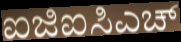
ಐಜಿಐಸಿಎಚ್